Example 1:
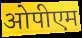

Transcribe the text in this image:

ओपीएम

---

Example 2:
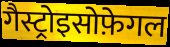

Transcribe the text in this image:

गैस्ट्रोइसोफ़ेगल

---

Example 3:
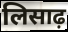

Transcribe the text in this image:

लिसाढ़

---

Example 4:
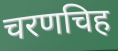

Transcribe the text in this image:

चरणचिह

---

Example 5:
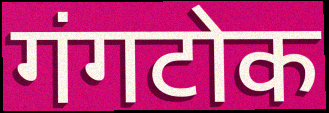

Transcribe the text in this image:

गंगटोक